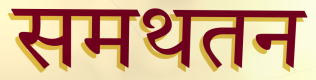
समथतन